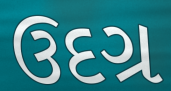
ઉદગ્ર